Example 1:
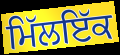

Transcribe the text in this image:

ਮਿੱਲਇੱਕ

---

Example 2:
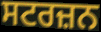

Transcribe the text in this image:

ਸਟਰਜ਼ਨ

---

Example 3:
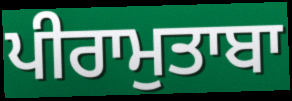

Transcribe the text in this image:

ਪੀਰਾਮੁਤਾਬਾ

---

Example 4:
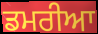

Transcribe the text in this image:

ਡਮਰੀਆ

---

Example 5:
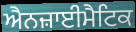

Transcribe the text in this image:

ਐਨਜ਼ਾਈਮੈਟਿਕ